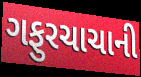
ગફુરચાચાની